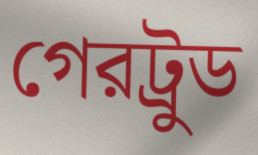
গেরট্রুড